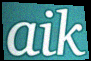
aik